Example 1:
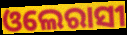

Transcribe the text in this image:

ଓଲେରାସୀ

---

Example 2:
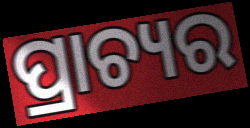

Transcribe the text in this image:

ପ୍ରାଚ୍ୟର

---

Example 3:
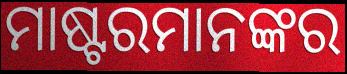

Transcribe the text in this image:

ମାଷ୍ଟରମାନଙ୍କର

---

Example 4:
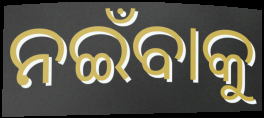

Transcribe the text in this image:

ନଇଁବାକୁ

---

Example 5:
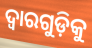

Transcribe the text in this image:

ଦ୍ୱାରଗୁଡ଼ିକୁ